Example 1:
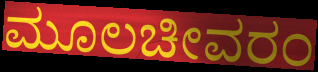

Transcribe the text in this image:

ಮೂಲಚೀವರಂ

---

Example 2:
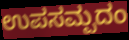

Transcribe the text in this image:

ಉಪಸಮ್ಪದಂ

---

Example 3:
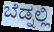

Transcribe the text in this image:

ಬೆಡ್ನಲ್ಲಿ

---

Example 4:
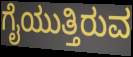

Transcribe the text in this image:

ಗೈಯುತ್ತಿರುವ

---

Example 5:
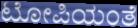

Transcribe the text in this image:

ಟೋಪಿಯಂತೆ